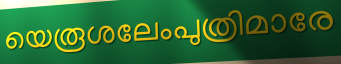
യെരൂശലേംപുത്രിമാരേ